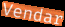
Vendar